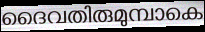
ദൈവതിരുമുമ്പാകെ